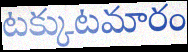
టక్కుటమారం